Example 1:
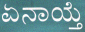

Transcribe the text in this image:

ಏನಾಯ್ತೆ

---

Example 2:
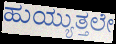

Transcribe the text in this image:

ಹುಯ್ಯುತ್ತಲೇ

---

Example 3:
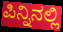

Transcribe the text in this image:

ಪಿನ್ನಿನಲ್ಲಿ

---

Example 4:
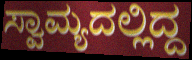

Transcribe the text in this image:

ಸ್ವಾಮ್ಯದಲ್ಲಿದ್ದ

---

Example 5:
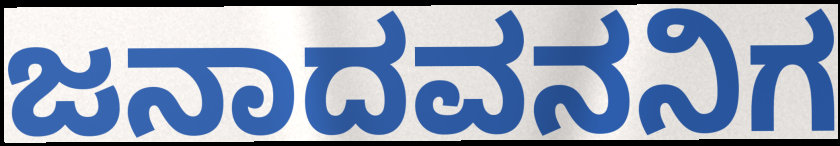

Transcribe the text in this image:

ಜನಾದವನನಿಗ